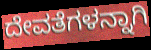
ದೇವತೆಗಳನ್ನಾಗಿ